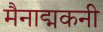
मैनाद्मकनी